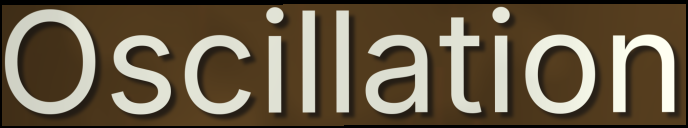
Oscillation